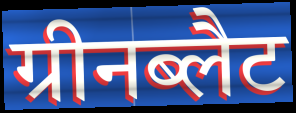
ग्रीनब्लैट